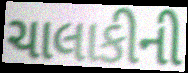
ચાલાકીની